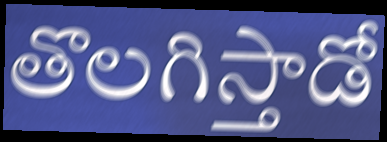
తొలగిస్తాడో